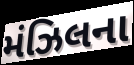
મંઝિલના